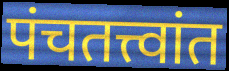
पंचतत्त्वांत